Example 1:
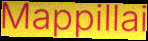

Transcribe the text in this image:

Mappillai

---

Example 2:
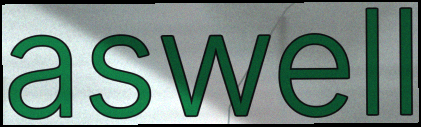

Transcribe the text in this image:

aswell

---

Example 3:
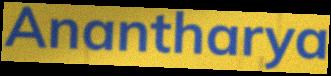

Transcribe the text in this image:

Anantharya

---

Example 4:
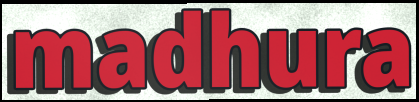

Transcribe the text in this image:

madhura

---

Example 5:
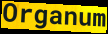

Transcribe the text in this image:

Organum